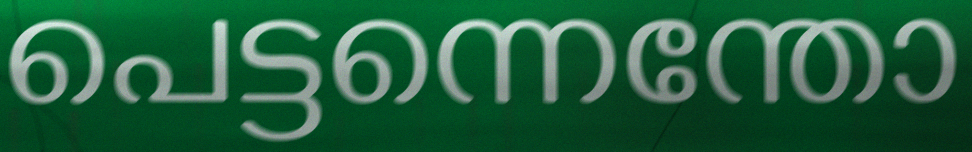
പെട്ടന്നെന്തോ